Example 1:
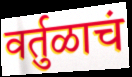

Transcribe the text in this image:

वर्तुळाचं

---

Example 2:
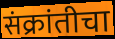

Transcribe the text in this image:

संक्रांतीचा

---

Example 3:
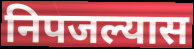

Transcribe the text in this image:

निपजल्यास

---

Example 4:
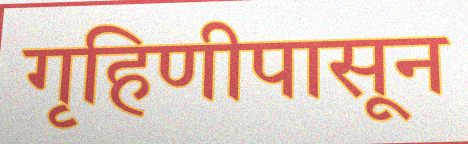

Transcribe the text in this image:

गृहिणीपासून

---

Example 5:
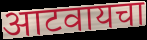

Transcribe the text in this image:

आटवायचा